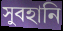
সুবহানি